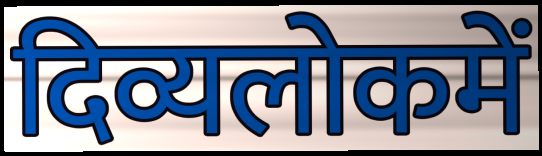
दिव्यलोकमें